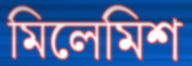
মিলেমিশ